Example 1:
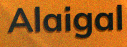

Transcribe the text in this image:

Alaigal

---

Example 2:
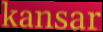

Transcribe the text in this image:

kansar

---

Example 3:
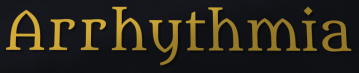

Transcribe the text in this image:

Arrhythmia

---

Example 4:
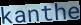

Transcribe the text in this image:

kanthe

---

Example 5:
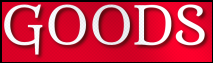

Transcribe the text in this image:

GOODS